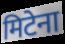
मिटेना